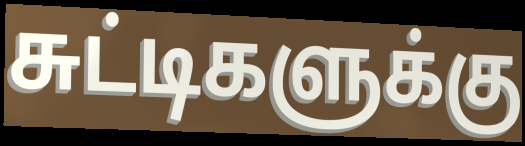
சுட்டிகளுக்கு